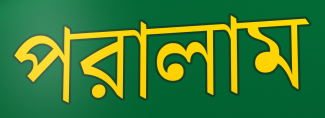
পরালাম